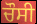
ਚੌਸੀ